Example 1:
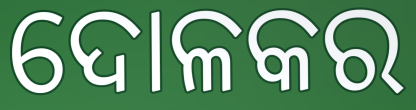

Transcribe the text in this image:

ଦୋଳକର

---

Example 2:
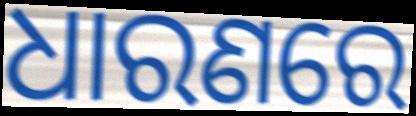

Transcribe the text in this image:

ଧାରଣରେ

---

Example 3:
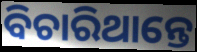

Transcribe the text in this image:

ବିଚାରିଥାନ୍ତେ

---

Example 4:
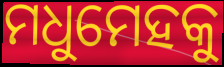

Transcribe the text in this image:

ମଧୁମେହକୁ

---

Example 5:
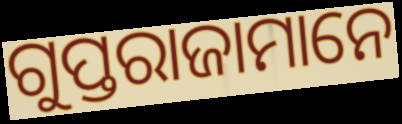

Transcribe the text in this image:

ଗୁପ୍ତରାଜାମାନେ